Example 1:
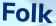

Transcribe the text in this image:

Folk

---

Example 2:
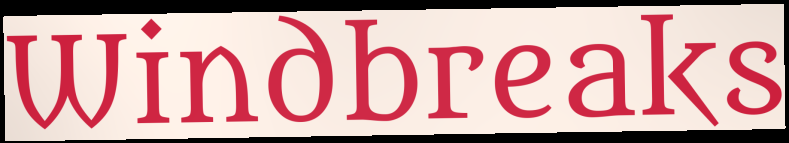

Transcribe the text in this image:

Windbreaks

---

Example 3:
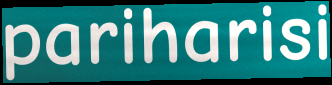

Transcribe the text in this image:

pariharisi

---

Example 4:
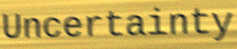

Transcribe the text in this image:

Uncertainty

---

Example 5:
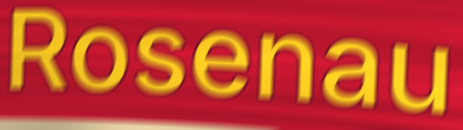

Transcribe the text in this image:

Rosenau